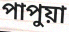
পাপুয়া